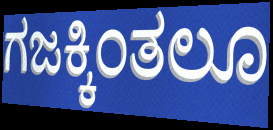
ಗಜಕ್ಕಿಂತಲೂ